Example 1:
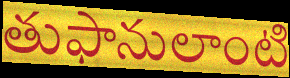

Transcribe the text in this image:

తుఫానులాంటి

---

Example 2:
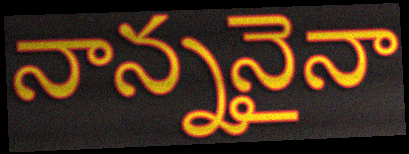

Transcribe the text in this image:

నాన్ననైనా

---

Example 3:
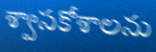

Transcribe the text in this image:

శ్వాసకోశాలను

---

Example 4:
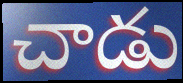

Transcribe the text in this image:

చాడు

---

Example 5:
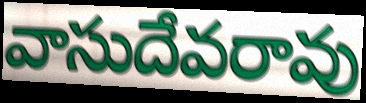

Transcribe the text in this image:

వాసుదేవరావు